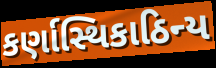
કર્ણાસ્થિકાઠિન્ય